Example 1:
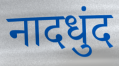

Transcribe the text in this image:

नादधुंद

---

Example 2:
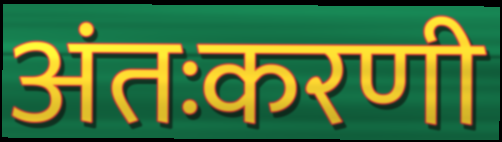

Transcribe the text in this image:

अंतःकरणी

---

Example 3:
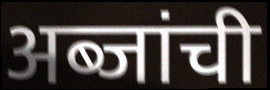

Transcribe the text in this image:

अब्जांची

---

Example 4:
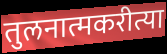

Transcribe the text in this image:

तुलनात्मकरीत्या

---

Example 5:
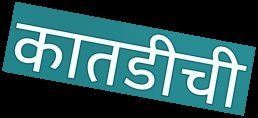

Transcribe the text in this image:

कातडीची